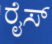
ರೈಸ್